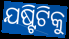
ଯଷ୍ଟିଟିକୁ